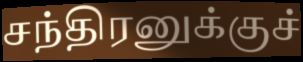
சந்திரனுக்குச்